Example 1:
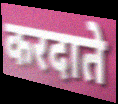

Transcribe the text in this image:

करदाते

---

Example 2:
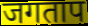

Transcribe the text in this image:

जगताप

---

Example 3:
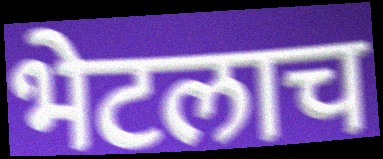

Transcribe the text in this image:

भेटलाच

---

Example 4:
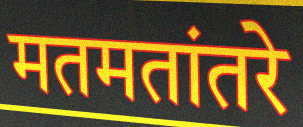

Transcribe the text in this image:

मतमतांतरे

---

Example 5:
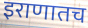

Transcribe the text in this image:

इराणातच